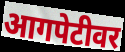
आगपेटीवर